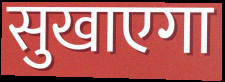
सुखाएगा